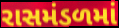
રાસમંડળમાં